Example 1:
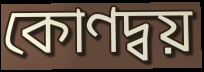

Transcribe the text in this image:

কোণদ্বয়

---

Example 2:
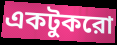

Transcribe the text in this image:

একটুকরো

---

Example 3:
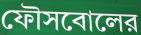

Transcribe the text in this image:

ফৌসবোলের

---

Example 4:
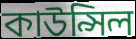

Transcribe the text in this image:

কাউন্সিল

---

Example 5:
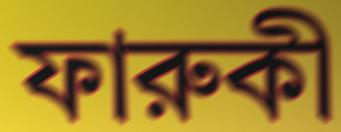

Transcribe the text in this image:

ফারুকী